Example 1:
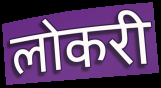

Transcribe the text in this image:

लोकरी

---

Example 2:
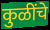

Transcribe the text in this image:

कुळींचे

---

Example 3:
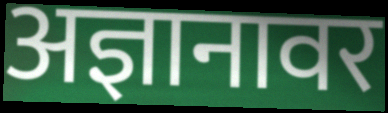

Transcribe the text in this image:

अज्ञानावर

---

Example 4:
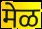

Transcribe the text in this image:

मेळ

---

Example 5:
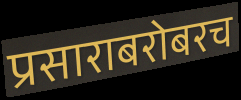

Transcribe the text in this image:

प्रसाराबरोबरच